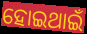
ହୋଇଥାଇଁ